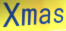
Xmas